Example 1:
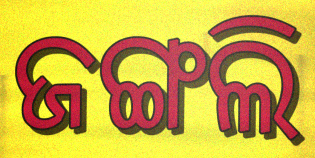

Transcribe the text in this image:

ଜଙ୍ଗଲି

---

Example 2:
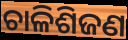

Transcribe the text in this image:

ଚାଳିଶିଜଣ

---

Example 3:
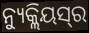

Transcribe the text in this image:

ନ୍ୟୁକ୍ଲିୟସ୍‌ର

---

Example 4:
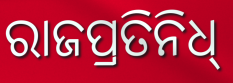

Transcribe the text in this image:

ରାଜପ୍ରତିନିଧ୍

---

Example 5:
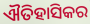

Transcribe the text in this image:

ଐତିହାସିକର